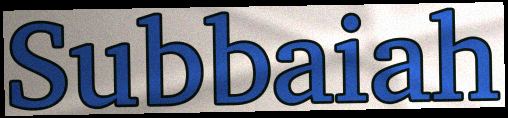
Subbaiah